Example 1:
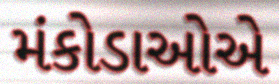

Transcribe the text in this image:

મંકોડાઓએ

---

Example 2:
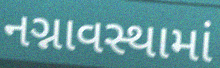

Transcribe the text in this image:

નગ્નાવસ્થામાં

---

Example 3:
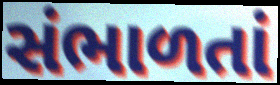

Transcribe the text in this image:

સંભાળતાં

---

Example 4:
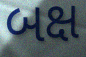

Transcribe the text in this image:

બક્ષ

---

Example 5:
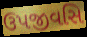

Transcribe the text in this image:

ઉપજીવસિ